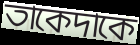
তাকেদাকে